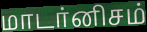
மாடர்னிசம்